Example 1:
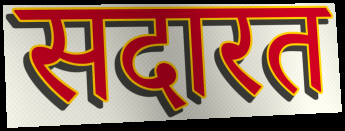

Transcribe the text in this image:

सदारत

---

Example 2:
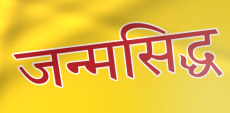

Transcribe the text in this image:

जन्‍मसिद्ध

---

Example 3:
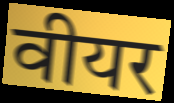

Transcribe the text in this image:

वीयर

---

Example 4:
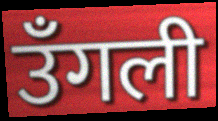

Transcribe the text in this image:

उँगली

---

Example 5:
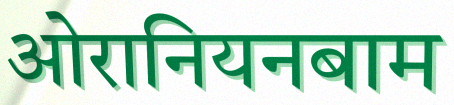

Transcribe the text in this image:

ओरानियनबाम